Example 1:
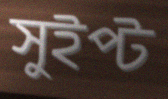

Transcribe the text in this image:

সুইপ্ট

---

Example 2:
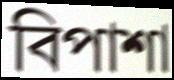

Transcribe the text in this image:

বিপাশা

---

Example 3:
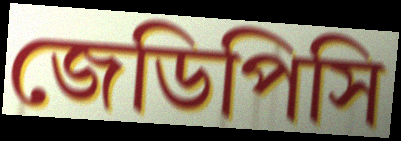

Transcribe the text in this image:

জেডিপিসি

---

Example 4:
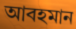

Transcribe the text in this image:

আবহমান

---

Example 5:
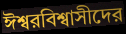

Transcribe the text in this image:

ঈশ্বরবিশ্বাসীদের